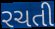
રચતી